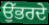
ਉੱਭਰਦੇ